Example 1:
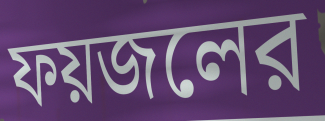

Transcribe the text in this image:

ফয়জলের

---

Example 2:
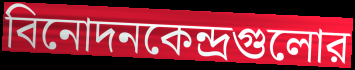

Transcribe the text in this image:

বিনোদনকেন্দ্রগুলোর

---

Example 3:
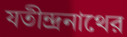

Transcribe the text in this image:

যতীন্দ্রনাথের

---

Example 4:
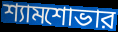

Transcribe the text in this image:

শ্যামশোভার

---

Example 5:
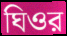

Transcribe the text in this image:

ঘিওর